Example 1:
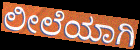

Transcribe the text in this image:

ಲೀಲೆಯಾಗಿ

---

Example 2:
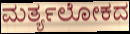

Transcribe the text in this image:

ಮರ್ತ್ಯಲೋಕದ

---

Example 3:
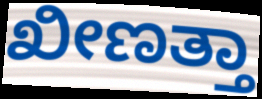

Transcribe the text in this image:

ಖೀಣತ್ತಾ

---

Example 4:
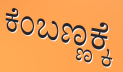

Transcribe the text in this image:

ಕೆಂಬಣ್ಣಕ್ಕೆ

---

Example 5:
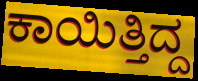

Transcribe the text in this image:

ಕಾಯಿತ್ತಿದ್ದ